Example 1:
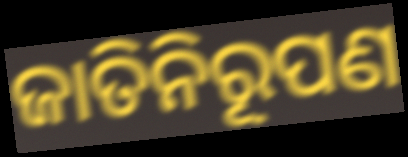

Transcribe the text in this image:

ଜାତିନିରୂପଣ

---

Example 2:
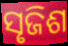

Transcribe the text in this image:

ସୃଜିଶ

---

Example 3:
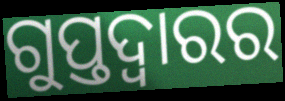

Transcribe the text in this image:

ଗୁପ୍ତଦ୍ୱାରର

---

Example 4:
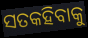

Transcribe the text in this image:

ସତକହିବାକୁ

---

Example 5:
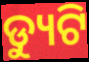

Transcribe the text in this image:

ଡ୍ୟୁଟି